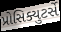
પ્રોસિક્યુટર્સે